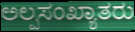
ಅಲ್ಪಸಂಖ್ಯಾತರು